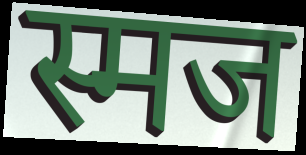
स्मज